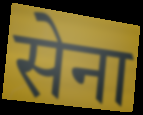
सेना